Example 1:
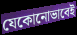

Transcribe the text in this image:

যেকোনোভাবেই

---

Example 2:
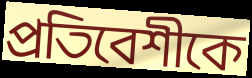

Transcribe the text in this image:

প্রতিবেশীকে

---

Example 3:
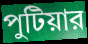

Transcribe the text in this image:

পুটিয়ার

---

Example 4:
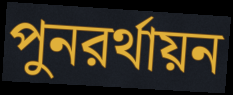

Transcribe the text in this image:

পুনরর্থায়ন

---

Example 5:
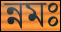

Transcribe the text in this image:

ন্নমঃ